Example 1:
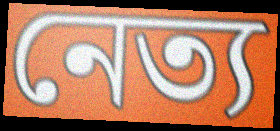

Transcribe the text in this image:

নেত্য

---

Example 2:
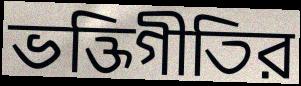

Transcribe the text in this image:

ভক্তিগীতির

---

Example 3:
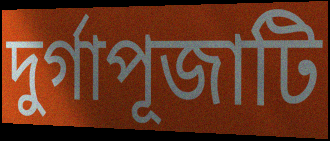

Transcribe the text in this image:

দুর্গাপূজাটি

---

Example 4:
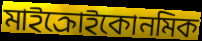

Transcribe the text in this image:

মাইক্রোইকোনমিক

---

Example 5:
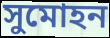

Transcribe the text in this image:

সুমোহন